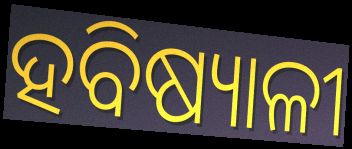
ହବିଷ୍ୟାଳୀ